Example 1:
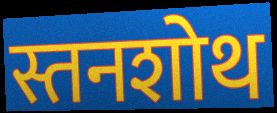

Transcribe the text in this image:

स्तनशोथ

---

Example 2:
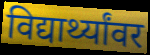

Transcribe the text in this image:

विद्यार्थ्यांवर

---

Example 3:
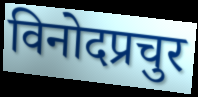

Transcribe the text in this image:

विनोदप्रचुर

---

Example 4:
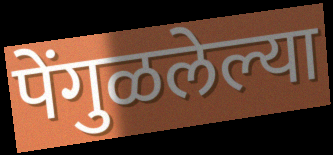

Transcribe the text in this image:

पेंगुळलेल्या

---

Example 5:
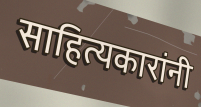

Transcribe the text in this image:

साहित्यकारांनी